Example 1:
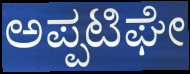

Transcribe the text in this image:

ಅಪ್ಪಟಿಘೇ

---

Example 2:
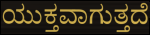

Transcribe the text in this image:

ಯುಕ್ತವಾಗುತ್ತದೆ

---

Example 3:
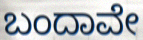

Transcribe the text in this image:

ಬಂದಾವೇ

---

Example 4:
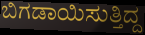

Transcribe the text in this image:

ಬಿಗಡಾಯಿಸುತ್ತಿದ್ದ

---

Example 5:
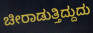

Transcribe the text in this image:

ಚೀರಾಡುತ್ತಿದ್ದುದು